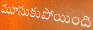
మూసుకుపోయింది